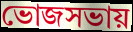
ভোজসভায়